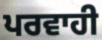
ਪਰਵਾਹੀ